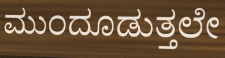
ಮುಂದೂಡುತ್ತಲೇ